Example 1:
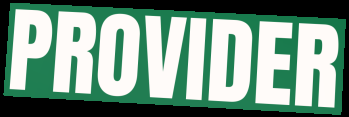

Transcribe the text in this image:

PROVIDER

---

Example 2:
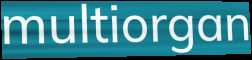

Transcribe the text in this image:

multiorgan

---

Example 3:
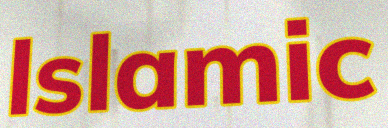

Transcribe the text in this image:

lslamic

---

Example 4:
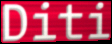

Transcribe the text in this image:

Diti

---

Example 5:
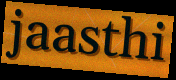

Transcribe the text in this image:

jaasthi